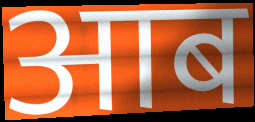
आब